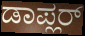
ಡಾಪ್ಲರ್